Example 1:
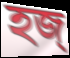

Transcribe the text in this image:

হজ্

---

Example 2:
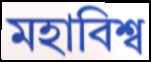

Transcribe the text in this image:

মহাবিশ্ব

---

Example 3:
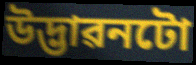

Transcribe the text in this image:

উদ্ভাৱনটো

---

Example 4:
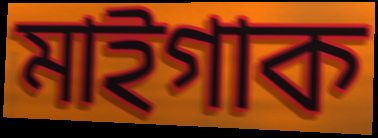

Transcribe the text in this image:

মাইগাক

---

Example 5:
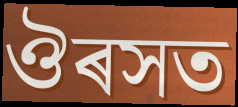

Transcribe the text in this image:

ঔৰসত